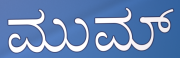
ಮುಮ್